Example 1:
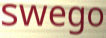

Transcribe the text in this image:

swego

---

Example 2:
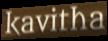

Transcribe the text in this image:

kavitha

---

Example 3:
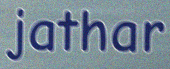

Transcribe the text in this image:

jathar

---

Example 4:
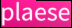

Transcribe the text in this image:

plaese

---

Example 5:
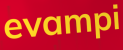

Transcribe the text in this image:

evampi